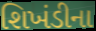
શિખંડીના